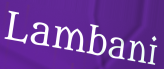
Lambani